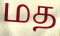
மத